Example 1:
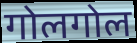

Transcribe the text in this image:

गोलगोल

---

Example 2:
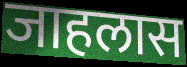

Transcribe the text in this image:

जाहलास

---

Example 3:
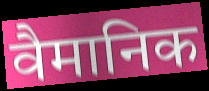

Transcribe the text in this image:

वैमानिक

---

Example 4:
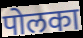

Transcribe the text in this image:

पोलका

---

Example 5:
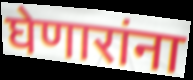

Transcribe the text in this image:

घेणारांना